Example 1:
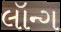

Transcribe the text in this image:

લૉન્ગ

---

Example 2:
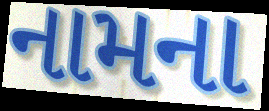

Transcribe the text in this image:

નામના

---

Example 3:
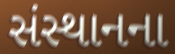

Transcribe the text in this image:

સંસ્થાનના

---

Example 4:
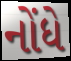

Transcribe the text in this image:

નોંધે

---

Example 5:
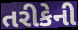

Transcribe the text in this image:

તરીકેની